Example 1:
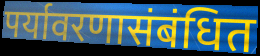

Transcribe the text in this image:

पर्यावरणासंबंधित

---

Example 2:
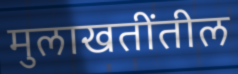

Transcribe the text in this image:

मुलाखतींतील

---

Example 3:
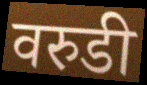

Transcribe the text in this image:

वरुडी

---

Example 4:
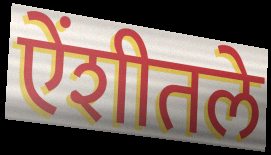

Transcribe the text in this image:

ऐंशीतले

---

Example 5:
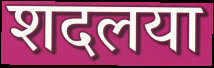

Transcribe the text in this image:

शदलया